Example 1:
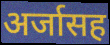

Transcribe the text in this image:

अर्जासह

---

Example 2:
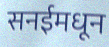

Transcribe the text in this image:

सनईमधून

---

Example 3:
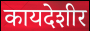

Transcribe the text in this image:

कायदेशीर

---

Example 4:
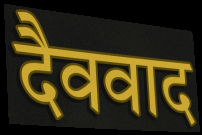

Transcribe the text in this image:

दैववाद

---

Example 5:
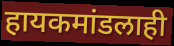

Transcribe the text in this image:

हायकमांडलाही